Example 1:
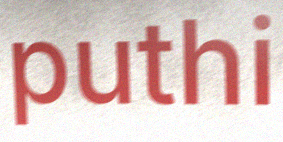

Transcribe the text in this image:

puthi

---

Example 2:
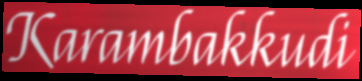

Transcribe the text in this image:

Karambakkudi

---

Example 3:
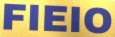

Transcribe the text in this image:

FIEIO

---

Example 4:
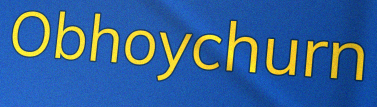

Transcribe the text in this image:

Obhoychurn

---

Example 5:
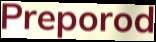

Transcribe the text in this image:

Preporod